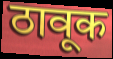
ठावूक